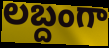
లబ్దంగా